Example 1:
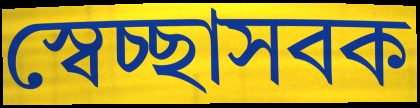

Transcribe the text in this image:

স্বেচ্ছাসবক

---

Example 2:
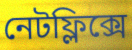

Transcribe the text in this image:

নেটফ্লিক্সে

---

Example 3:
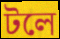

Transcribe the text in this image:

টলে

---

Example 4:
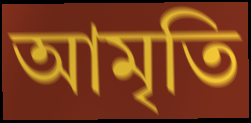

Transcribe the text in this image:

আমৃতি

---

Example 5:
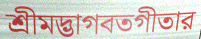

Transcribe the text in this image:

শ্রীমদ্ভাগবতগীতার